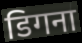
डिगना